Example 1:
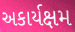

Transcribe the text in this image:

અકાર્યક્ષમ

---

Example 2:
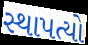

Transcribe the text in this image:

સ્થાપત્યો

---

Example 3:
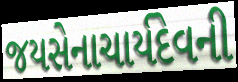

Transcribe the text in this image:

જયસેનાચાર્યદેવની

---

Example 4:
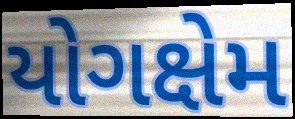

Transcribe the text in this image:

યોગક્ષેમ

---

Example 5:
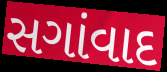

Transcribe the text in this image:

સગાંવાદ